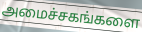
அமைச்சகங்களை